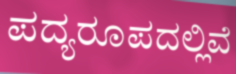
ಪದ್ಯರೂಪದಲ್ಲಿವೆ